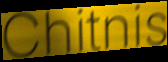
Chitnis